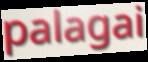
palagai